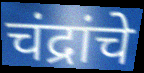
चंद्रांचे